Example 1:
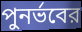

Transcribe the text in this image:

পুনর্ভবের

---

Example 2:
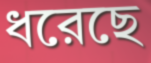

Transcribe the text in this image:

ধরেছে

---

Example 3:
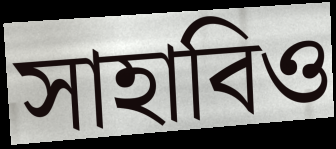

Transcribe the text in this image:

সাহাবিও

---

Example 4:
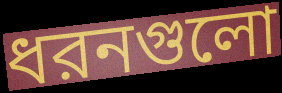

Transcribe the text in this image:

ধরনগুলো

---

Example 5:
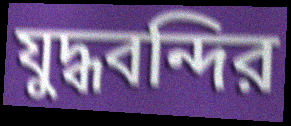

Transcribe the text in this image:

যুদ্ধবন্দির